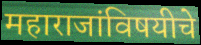
महाराजांविषयीचे